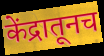
केंद्रातूनच